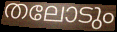
തലോടും